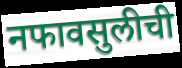
नफावसुलीची